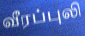
வீரப்புலி